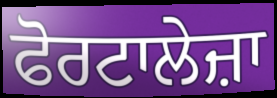
ਫੋਰਟਾਲੇਜ਼ਾ